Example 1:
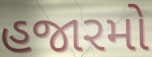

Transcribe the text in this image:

હજારમો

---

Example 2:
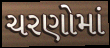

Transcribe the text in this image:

ચરણોમાં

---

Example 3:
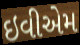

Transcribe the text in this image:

ઇવીએમ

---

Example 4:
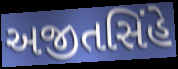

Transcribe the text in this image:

અજીતસિંહે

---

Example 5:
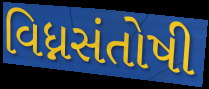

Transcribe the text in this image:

વિધ્નસંતોષી